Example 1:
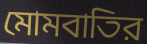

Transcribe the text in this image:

মোমবাতির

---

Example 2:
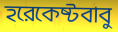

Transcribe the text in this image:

হরেকেষ্টবাবু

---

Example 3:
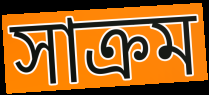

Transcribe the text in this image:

সাক্রম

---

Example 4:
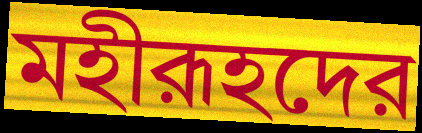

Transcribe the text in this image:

মহীরূহদের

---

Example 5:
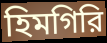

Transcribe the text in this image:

হিমগিরি